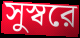
সুস্বরে